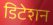
डिटेशन